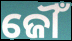
ଜୌଁ